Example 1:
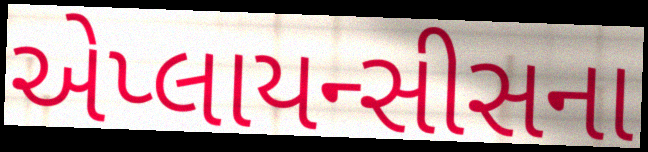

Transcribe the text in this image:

એપ્લાયન્સીસના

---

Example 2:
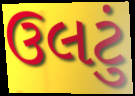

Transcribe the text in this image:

ઉલટું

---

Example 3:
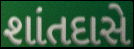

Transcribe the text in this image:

શાંતદાસે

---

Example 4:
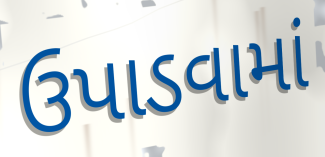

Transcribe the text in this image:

ઉપાડવામાં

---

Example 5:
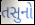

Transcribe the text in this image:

તસુનો